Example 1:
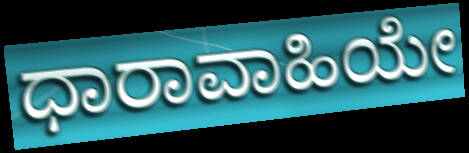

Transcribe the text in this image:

ಧಾರಾವಾಹಿಯೇ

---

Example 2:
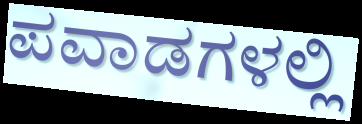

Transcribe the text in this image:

ಪವಾಡಗಳಲ್ಲಿ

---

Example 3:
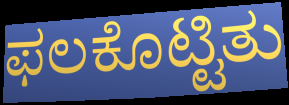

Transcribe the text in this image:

ಫಲಕೊಟ್ಟಿತು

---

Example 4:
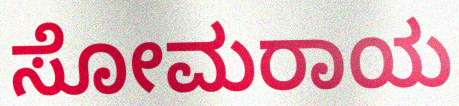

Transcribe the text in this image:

ಸೋಮರಾಯ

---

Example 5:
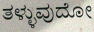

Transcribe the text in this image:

ತಳ್ಳುವುದೋ